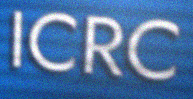
ICRC